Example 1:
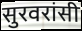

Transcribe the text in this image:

सुरवरांसी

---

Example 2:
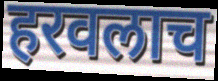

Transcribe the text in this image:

हरवलाच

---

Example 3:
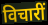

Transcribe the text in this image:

विचारीं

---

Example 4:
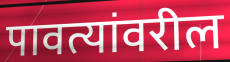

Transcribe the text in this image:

पावत्यांवरील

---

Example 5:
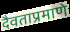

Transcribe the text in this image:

दैवताप्रमाणे